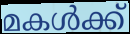
മകൾക്ക്